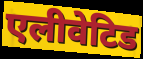
एलीवेटिड